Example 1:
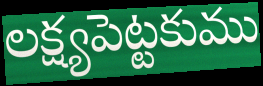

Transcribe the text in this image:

లక్ష్యపెట్టకుము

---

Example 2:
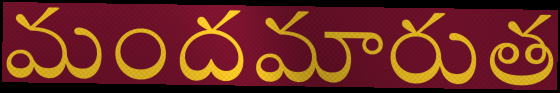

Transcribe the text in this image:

మందమారుత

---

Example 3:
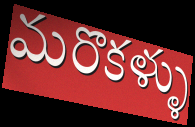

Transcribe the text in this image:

మరొకళ్ళు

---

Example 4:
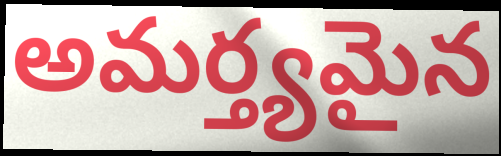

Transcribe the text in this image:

అమర్త్యమైన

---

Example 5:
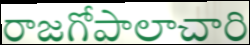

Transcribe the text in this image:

రాజగోపాలాచారి